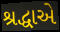
શ્રદ્ધાએ